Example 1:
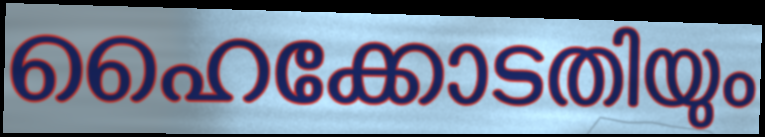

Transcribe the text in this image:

ഹൈക്കോടതിയും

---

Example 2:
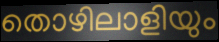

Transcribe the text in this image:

തൊഴിലാളിയും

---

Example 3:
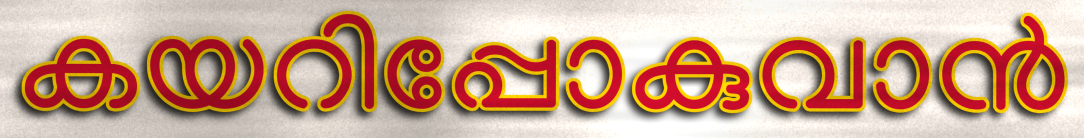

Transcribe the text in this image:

കയറിപ്പോകുവാൻ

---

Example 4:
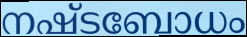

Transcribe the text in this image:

നഷ്ടബോധം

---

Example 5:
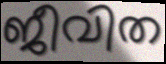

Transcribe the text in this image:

ജീവിത